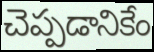
చెప్పడానికేం